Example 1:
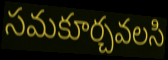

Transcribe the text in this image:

సమకూర్చవలసి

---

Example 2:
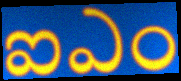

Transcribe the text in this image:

ఐఎం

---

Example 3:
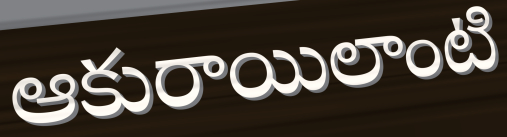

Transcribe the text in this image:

ఆకురాయిలాంటి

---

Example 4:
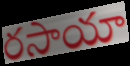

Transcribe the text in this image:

రసాయా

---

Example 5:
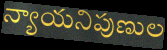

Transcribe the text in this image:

న్యాయనిపుణుల